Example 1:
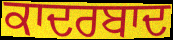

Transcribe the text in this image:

ਕਾਦਰਬਾਦ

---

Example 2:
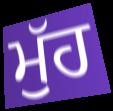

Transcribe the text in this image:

ਮੁੱਹ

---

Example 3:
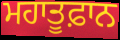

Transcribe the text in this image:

ਮਹਾਤੂਫ਼ਾਨ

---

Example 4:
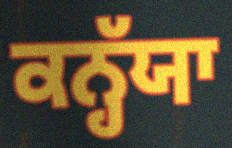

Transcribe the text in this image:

ਕਨ੍ਹੱਯਾ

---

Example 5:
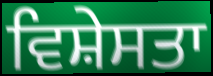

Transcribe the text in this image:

ਵਿਸ਼ੇਸਤਾ